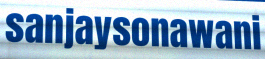
sanjaysonawani